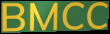
BMCC